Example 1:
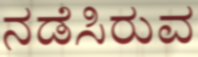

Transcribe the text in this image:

ನಡೆಸಿರುವ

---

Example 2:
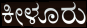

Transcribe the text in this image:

ಕೀಳೂರು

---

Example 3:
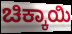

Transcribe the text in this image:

ಚಿಕ್ಕಾಯಿ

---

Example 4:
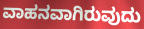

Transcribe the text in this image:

ವಾಹನವಾಗಿರುವುದು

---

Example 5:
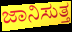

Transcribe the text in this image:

ಜಾನಿಸುತ್ತ